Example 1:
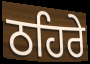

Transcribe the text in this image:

ਠਹਿਰੇ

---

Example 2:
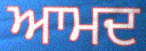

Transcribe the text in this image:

ਆਮਦ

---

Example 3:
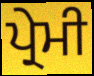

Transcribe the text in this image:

ਪ੍ਰੇਮੀ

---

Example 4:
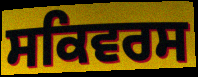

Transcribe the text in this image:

ਸਕਿਵਰਸ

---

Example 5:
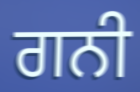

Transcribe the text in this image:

ਗਨੀ